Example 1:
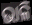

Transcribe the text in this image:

ଭାଳି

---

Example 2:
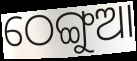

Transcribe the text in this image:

ଠେଙ୍ଗୁଆ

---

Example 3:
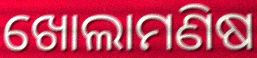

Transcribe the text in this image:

ଖୋଲାମଣିଷ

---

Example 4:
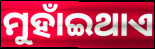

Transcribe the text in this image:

ମୁହାଁଇଥାଏ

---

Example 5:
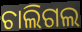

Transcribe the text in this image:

ଚାଲିଗଲ